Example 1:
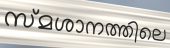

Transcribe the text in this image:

സ്മശാനത്തിലെ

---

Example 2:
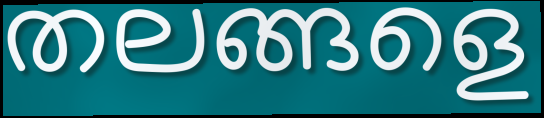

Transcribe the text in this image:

തലങ്ങളെ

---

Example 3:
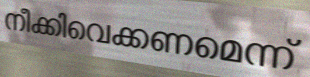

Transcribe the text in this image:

നീക്കിവെക്കണമെന്ന്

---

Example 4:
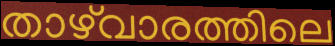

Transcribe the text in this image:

താഴ്‌വാരത്തിലെ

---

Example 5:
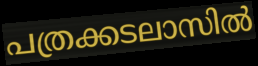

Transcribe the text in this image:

പത്രക്കടലാസിൽ